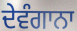
ਦੇਵੰਗਾਨਾ